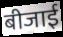
बीजाई